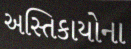
અસ્તિકાયોના